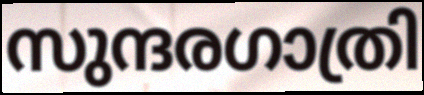
സുന്ദരഗാത്രി